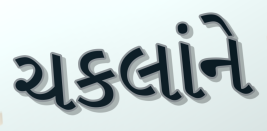
ચકલાંને